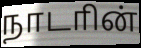
நாடரின்